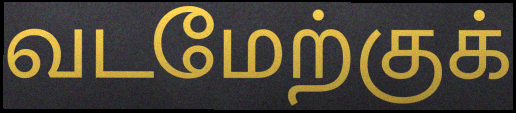
வடமேற்குக்